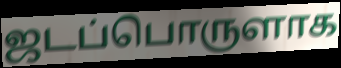
ஜடப்பொருளாக